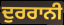
ਦੁਰਰਾਨੀ